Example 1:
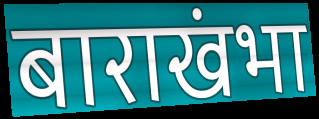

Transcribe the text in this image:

बाराखंभा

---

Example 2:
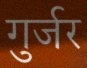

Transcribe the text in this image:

गुर्जर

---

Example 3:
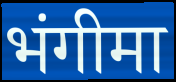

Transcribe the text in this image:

भंगीमा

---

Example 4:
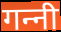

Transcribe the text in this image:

गन्नी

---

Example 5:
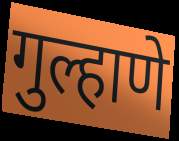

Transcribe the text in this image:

गुल्हाणे